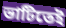
ভাটিতেই